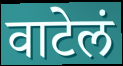
वाटेलं